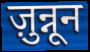
ज़ुन्नून